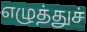
எழுத்துச்